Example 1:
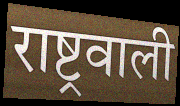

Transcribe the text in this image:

राष्ट्रवाली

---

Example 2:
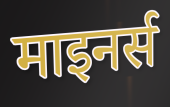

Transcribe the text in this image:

माइनर्स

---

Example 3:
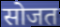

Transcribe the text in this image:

सोजत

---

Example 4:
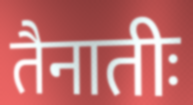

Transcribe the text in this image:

तैनातीः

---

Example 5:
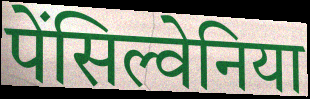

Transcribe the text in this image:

पेंसिल्वेनिया